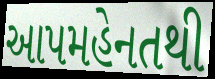
આપમહેનતથી